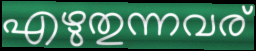
എഴുതുന്നവര്